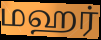
மஹர்